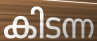
കിടന്ന